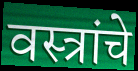
वस्त्रांचे